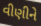
વીણીને